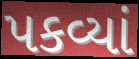
પકવ્યાં